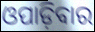
ଓପାଡ଼ିବାର